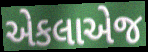
એકલાએજ